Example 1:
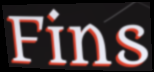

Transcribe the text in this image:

Fins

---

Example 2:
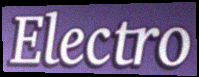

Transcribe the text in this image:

Electro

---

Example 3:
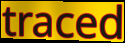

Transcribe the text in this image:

traced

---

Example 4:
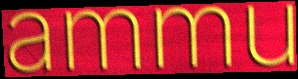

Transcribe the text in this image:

ammu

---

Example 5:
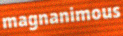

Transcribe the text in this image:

magnanimous